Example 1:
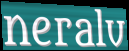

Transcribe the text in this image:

neralu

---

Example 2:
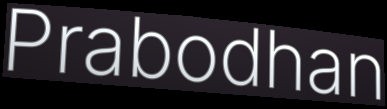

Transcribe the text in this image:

Prabodhan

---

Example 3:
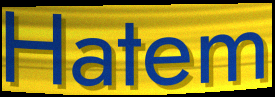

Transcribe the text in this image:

Hatem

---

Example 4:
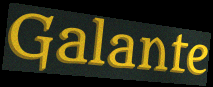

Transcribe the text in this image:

Galante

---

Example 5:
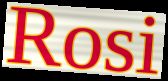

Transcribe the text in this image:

Rosi